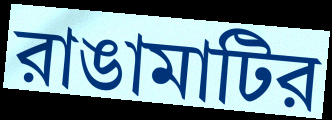
রাঙামাটির